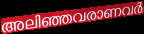
അലിഞ്ഞവരാണവർ